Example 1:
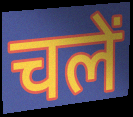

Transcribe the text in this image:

चलें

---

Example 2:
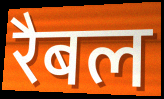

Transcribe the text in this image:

रैबल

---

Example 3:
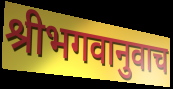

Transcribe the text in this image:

श्रीभगवानुवाच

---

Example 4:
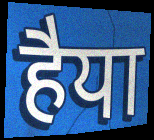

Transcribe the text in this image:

हैया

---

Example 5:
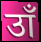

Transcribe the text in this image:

उाँ